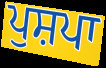
ਪੁਸ਼ਪਾ